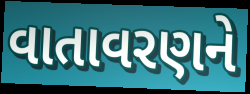
વાતાવરણને